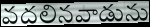
వదలినవాడును